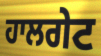
ਹਾਲਗੇਟ